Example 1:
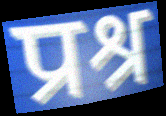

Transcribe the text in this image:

प्रश्र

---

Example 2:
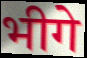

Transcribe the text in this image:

भीगे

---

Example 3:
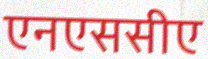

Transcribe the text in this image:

एनएससीए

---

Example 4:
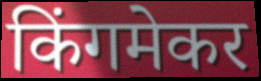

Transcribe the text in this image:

किंगमेकर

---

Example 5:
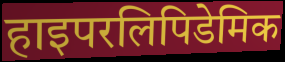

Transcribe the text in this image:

हाइपरलिपिडेमिक